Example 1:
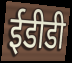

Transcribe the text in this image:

ईडीडी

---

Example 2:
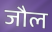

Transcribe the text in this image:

जौल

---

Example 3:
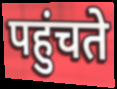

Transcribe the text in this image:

पहुंचते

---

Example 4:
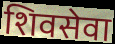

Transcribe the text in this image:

शिवसेवा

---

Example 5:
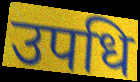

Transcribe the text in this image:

उपधि